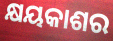
କ୍ଷୟକାଶର